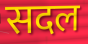
सदल